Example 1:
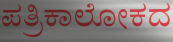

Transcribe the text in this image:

ಪತ್ರಿಕಾಲೋಕದ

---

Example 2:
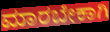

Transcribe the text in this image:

ಮಾರಬೇಕಾಗಿ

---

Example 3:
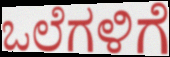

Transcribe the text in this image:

ಒಲೆಗಳಿಗೆ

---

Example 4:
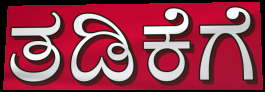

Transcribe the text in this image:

ತಡಿಕೆಗೆ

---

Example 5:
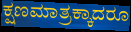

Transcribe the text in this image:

ಕ್ಷಣಮಾತ್ರಕ್ಕಾದರೂ